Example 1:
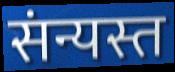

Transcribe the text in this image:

संन्यस्त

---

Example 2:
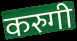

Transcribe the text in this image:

करुगी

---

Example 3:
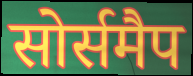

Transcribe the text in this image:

सोर्समैप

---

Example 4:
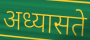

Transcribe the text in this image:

अध्यासते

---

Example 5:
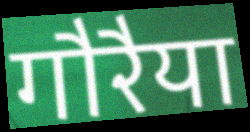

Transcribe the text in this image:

गौरैया